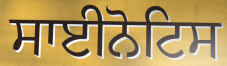
ਸਾਈਨੋਟਿਸ